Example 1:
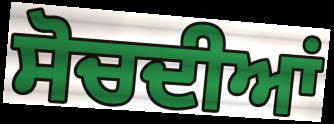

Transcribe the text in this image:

ਸੋਚਦੀਆਂ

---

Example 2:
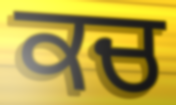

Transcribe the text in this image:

ਕਚ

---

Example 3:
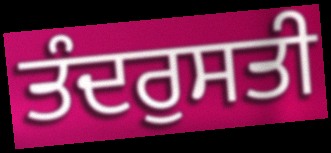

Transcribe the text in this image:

ਤੰਦਰੁਸਤੀ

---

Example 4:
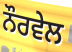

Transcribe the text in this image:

ਨੌਰਵੇਲ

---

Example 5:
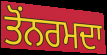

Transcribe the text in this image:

ਤੋਂਨਰਮਦਾ